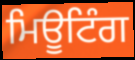
ਮਿਊਟਿੰਗ